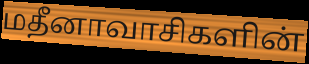
மதீனாவாசிகளின்